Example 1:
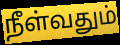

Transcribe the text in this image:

நீள்வதும்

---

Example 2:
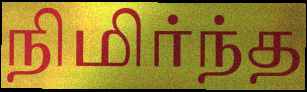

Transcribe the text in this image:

நிமிர்ந்த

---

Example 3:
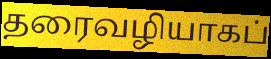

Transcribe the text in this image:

தரைவழியாகப்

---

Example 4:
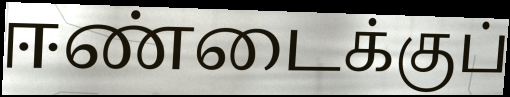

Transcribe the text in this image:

ஈண்டைக்குப்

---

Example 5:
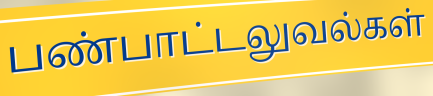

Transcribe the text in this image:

பண்பாட்டலுவல்கள்